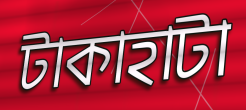
টাকাহাটা